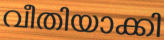
വീതിയാക്കി